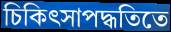
চিকিৎসাপদ্ধতিতে